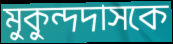
মুকুন্দদাসকে